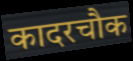
कादरचौक